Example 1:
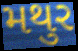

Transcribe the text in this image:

મથુર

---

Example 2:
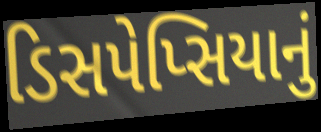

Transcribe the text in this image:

ડિસપેપ્સિયાનું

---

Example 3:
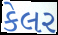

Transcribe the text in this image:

કેલર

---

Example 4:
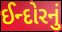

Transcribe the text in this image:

ઈન્દોરનું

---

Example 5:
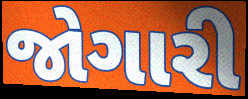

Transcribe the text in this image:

જોગારી